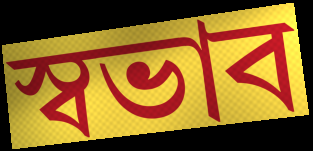
স্বভাব